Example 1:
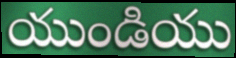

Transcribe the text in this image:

యుండియు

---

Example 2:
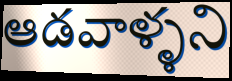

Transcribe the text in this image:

ఆడవాళ్ళని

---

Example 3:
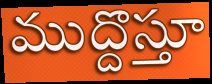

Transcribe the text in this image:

ముద్దొస్తూ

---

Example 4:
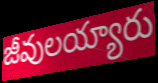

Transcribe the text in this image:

జీవులయ్యారు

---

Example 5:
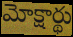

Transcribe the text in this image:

మోక్షార్థు